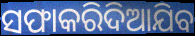
ସଫାକରିଦିଆଯିବ